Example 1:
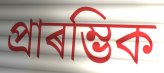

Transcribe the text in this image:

প্ৰাৰম্ভিক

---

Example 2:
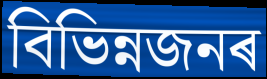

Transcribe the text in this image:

বিভিন্নজনৰ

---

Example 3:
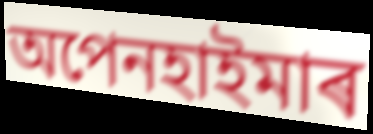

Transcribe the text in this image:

অপেনহাইমাৰ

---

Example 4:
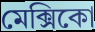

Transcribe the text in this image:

মেক্সিকো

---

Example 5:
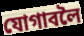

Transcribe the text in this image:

যোগাবলৈ